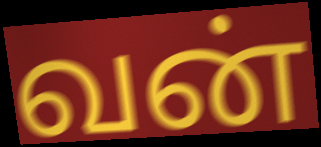
வன்